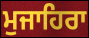
ਮੁਜਾਹਿਰਾ